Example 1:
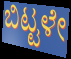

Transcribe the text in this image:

ಬಿಟ್ಟಳೇ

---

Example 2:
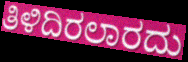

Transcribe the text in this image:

ತಿಳಿದಿರಲಾರದು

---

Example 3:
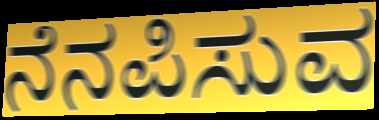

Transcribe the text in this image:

ನೆನಪಿಸುವ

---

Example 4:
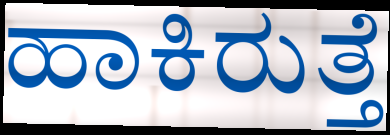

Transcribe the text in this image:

ಹಾಕಿರುತ್ತೆ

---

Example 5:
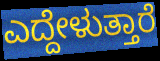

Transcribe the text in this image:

ಎದ್ದೇಳುತ್ತಾರೆ